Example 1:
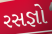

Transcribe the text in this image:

રસજ્ઞો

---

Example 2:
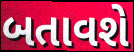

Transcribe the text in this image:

બતાવશે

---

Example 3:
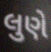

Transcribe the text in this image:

લુણે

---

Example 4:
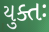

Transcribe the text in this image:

યુક્તઃ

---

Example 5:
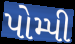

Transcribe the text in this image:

પોમ્પી